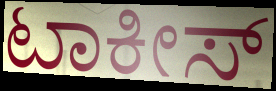
ಟಾಕೀಸ್